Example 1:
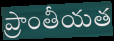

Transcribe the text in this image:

ప్రాంతీయత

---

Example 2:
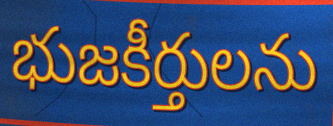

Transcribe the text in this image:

భుజకీర్తులను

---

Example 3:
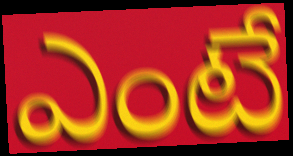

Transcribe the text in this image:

ఎంటే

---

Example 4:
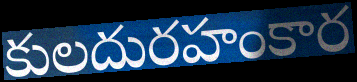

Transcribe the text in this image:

కులదురహంకార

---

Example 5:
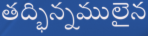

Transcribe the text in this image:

తద్భిన్నములైన